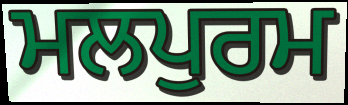
ਮਲਪੁਰਮ